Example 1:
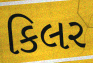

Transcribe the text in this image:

કિલર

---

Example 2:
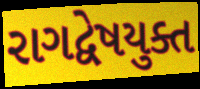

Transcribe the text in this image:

રાગદ્વેષયુક્ત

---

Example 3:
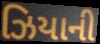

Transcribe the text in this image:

ઝિયાની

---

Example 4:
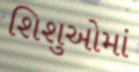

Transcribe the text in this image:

શિશુઓમાં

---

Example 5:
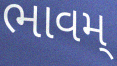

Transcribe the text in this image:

ભાવમ્